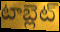
టాబ్లెట్